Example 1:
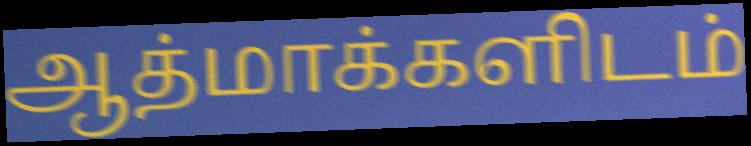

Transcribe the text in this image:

ஆத்மாக்களிடம்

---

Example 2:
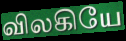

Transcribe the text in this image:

விலகியே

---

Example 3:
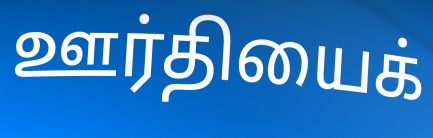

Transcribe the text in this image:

ஊர்தியைக்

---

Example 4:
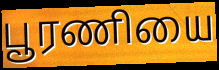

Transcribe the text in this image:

பூரணியை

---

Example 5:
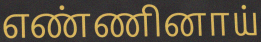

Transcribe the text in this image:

எண்ணினாய்